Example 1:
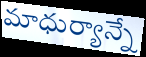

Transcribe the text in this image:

మాధుర్యాన్నే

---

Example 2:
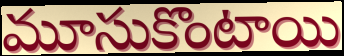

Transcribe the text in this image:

మూసుకొంటాయి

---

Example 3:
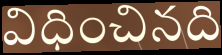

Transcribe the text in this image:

విధించినది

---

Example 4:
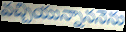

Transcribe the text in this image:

వచ్చియున్నాననెను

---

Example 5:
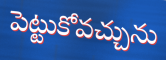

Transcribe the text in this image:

పెట్టుకోవచ్చును